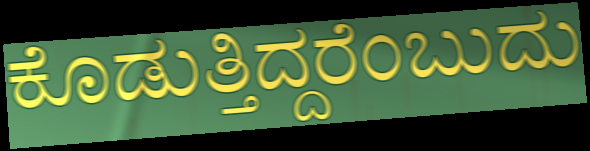
ಕೊಡುತ್ತಿದ್ದರೆಂಬುದು